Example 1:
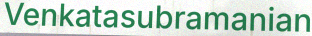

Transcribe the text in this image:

Venkatasubramanian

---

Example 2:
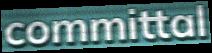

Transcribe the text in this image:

committal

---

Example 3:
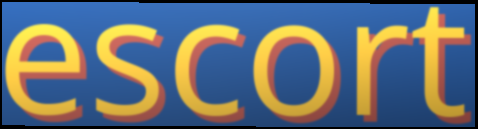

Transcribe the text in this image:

escort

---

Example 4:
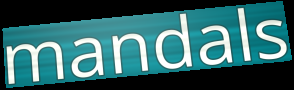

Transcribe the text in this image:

mandals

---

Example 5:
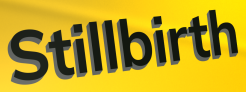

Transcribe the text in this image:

Stillbirth